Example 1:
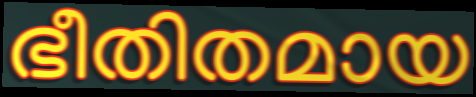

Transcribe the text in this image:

ഭീതിതമായ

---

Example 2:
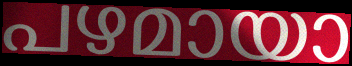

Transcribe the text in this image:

പഴമായാ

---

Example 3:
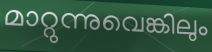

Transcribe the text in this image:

മാറ്റുന്നുവെങ്കിലും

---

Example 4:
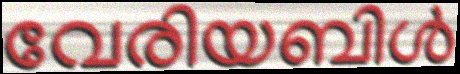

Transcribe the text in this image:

വേരിയബിൾ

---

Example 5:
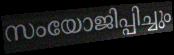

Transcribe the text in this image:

സംയോജിപ്പിച്ചും